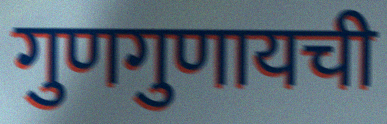
गुणगुणायची